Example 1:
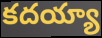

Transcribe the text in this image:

కదయ్యా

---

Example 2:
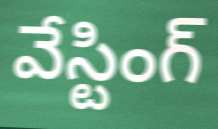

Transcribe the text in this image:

వేస్టింగ్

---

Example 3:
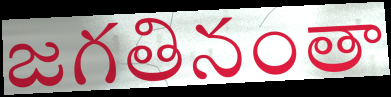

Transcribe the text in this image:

జగతినంతా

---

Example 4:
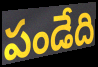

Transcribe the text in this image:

పండేది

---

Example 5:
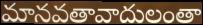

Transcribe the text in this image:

మానవతావాదులంతా